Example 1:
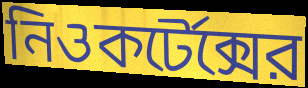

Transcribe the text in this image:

নিওকর্টেক্সের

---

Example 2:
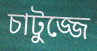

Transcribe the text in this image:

চাটুজ্জে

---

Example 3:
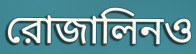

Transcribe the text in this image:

রোজালিনও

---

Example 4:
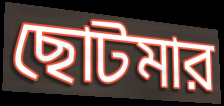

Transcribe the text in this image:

ছোটমার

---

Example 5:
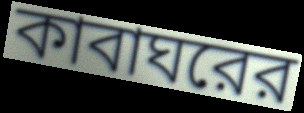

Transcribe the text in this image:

কাবাঘরের